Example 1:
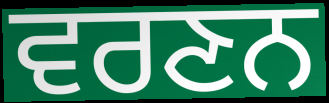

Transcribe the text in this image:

ਵਰਣਨ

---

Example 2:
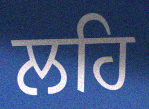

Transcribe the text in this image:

ਲਹਿ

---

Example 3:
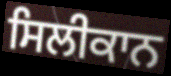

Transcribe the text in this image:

ਸਿਲੀਕਾਨ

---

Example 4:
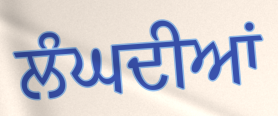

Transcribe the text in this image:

ਲੰਘਦੀਆਂ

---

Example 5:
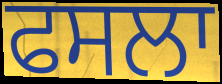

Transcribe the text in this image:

ਫਸਲਾ